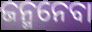
ଜନ୍ମନେବା